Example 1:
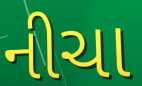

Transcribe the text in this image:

નીચા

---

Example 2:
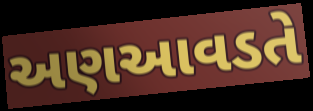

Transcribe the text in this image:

અણઆવડતે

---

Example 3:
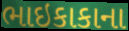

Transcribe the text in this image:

ભાઇકાકાના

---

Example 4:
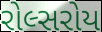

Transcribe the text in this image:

રોલ્સરોય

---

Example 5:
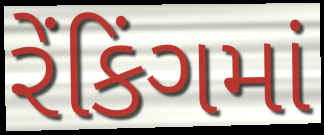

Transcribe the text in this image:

રેંકિંગમાં